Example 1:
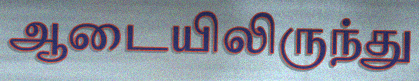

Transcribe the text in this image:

ஆடையிலிருந்து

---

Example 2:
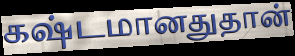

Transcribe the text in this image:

கஷ்டமானதுதான்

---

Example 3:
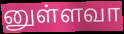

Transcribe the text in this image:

னுள்ளவா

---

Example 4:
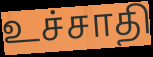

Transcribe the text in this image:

உச்சாதி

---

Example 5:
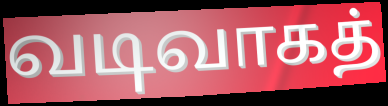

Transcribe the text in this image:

வடிவாகத்